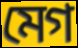
মেগ